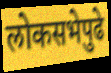
लोकसभेपुढे